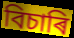
বিচাৰি